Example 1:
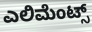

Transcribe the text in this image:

ಎಲಿಮೆಂಟ್ಸ್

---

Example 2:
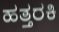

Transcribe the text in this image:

ಹತ್ತರಕಿ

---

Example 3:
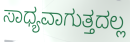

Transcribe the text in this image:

ಸಾಧ್ಯವಾಗುತ್ತದಲ್ಲ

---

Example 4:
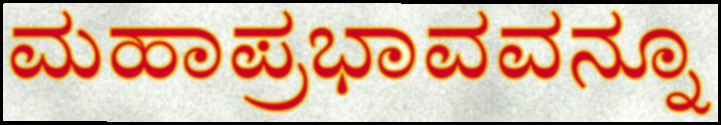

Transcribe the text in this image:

ಮಹಾಪ್ರಭಾವವನ್ನೂ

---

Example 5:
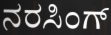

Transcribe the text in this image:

ನರಸಿಂಗ್